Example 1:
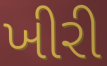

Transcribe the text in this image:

ખીરી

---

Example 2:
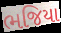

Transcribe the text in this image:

ભજિયા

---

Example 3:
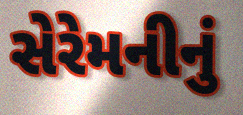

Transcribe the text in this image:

સેરેમનીનું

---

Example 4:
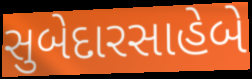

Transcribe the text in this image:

સુબેદારસાહેબે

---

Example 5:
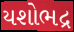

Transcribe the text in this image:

યશોભદ્ર